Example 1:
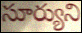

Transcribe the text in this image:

సూర్యుని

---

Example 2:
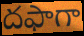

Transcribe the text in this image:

దఫాగా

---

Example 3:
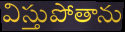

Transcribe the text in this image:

విస్తుపోతాను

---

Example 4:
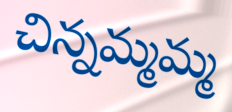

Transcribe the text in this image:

చిన్నమ్మమ్మ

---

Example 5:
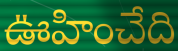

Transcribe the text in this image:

ఊహించేది